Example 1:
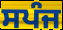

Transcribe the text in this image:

ਸਪੰਜ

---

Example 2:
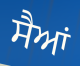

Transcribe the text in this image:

ਸੈਆਂ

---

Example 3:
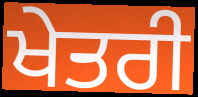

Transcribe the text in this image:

ਖੇਤਰੀ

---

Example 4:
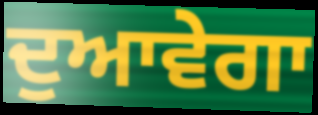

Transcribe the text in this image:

ਦੁਆਵੇਗਾ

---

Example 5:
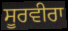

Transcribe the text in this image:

ਸੂਰਵੀਰਾ